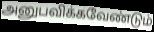
அனுபவிக்கவேண்டும்